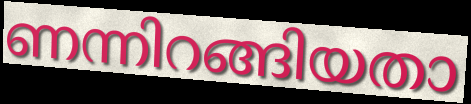
ണന്നിറങ്ങിയതാ